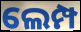
ଲେମ୍ପ